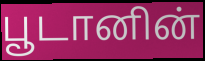
பூடானின்